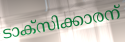
ടാക്സിക്കാരന്